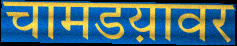
चामडय़ावर